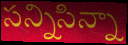
సన్నిసిన్నా